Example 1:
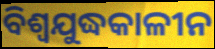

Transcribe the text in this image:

ବିଶ୍ୱଯୁଦ୍ଧକାଳୀନ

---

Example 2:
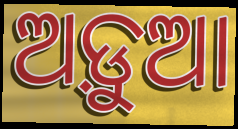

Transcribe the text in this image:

ଅଡ଼ୁଆ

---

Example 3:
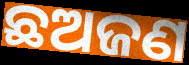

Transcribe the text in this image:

ଛଅଜଣ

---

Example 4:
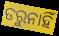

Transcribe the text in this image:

ଡରୁନାହିଁ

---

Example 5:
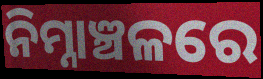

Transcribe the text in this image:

ନିମ୍ନାଞ୍ଚଳରେ